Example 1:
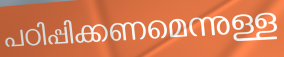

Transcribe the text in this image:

പഠിപ്പിക്കണമെന്നുള്ള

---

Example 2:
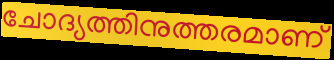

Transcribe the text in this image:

ചോദ്യത്തിനുത്തരമാണ്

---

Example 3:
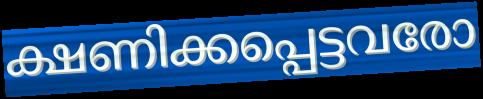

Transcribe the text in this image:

ക്ഷണിക്കപ്പെട്ടവരോ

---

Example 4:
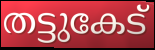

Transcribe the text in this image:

തട്ടുകേട്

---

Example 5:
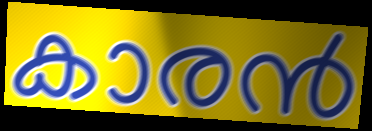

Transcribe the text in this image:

കാരൻ